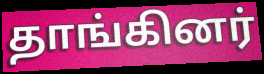
தாங்கினர்